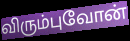
விரும்புவோன்